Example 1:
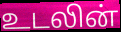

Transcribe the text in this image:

உடலின்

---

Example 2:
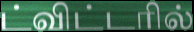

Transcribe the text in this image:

ட்விட்டரில்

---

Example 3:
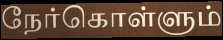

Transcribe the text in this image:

நேர்கொள்ளும்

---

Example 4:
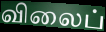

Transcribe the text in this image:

விலைப்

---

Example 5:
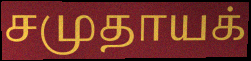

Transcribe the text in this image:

சமுதாயக்